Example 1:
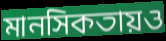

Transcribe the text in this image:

মানসিকতায়ও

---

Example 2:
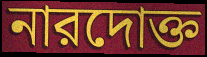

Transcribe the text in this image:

নারদোক্ত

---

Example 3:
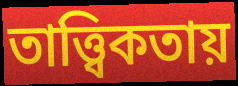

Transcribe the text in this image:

তাত্ত্বিকতায়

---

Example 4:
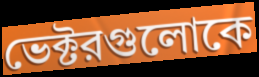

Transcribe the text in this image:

ভেক্টরগুলোকে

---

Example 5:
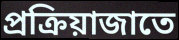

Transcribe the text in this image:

প্রক্রিয়াজাতে